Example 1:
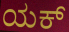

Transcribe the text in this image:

ಯಕ್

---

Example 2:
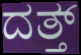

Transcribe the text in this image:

ದತ್ತ್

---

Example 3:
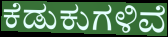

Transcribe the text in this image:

ಕೆಡುಕುಗಳಿವೆ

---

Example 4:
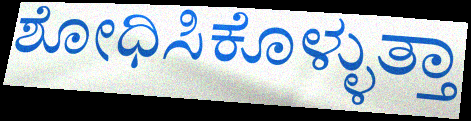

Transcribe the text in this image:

ಶೋಧಿಸಿಕೊಳ್ಳುತ್ತಾ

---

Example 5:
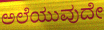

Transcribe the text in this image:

ಅಲೆಯುವುದೇ